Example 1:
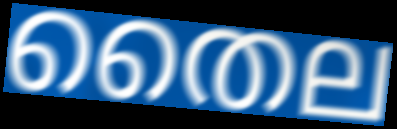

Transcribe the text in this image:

തൈല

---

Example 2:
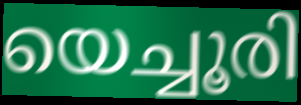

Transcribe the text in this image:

യെച്ചൂരി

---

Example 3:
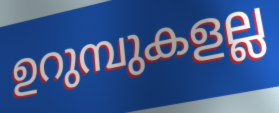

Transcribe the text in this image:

ഉറുമ്പുകളല്ല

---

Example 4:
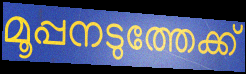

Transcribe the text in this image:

മൂപ്പനടുത്തേക്ക്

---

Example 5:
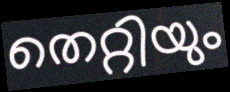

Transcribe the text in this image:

തെറ്റിയും